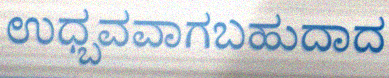
ಉಧ್ಬವವಾಗಬಹುದಾದ